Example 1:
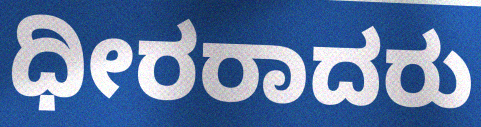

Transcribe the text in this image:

ಧೀರರಾದರು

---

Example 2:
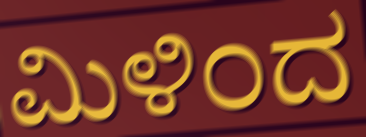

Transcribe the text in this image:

ಮಿಳಿಂದ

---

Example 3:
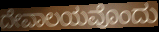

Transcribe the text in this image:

ದೇವಾಲಯವೊಂದು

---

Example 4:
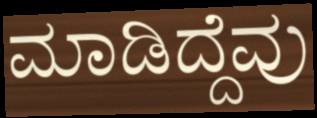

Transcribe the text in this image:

ಮಾಡಿದ್ದೆವು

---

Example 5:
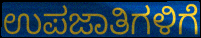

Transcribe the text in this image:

ಉಪಜಾತಿಗಳಿಗೆ